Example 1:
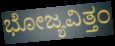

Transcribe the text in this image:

ಭೋಜ್ಯವಿತ್ತಂ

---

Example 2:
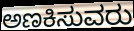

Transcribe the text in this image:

ಅಣಕಿಸುವರು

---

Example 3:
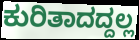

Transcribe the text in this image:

ಕುರಿತಾದದ್ದಲ್ಲ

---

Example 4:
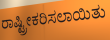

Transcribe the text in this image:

ರಾಷ್ಟ್ರೀಕರಿಸಲಾಯಿತು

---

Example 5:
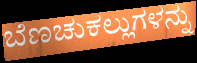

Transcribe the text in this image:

ಬೆಣಚುಕಲ್ಲುಗಳನ್ನು